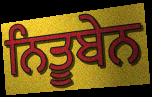
ਨਿਤੂਬੇਨ